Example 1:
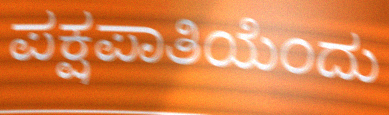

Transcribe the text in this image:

ಪಕ್ಷಪಾತಿಯೆಂದು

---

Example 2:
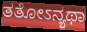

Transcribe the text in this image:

ತತೋಽನ್ಯಥಾ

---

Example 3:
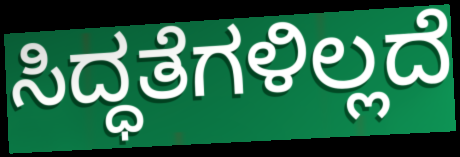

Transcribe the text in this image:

ಸಿದ್ಧತೆಗಳಿಲ್ಲದೆ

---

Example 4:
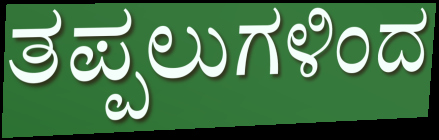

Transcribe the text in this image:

ತಪ್ಪಲುಗಳಿಂದ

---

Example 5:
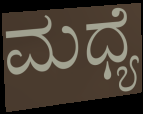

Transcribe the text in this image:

ಮಧ್ಯೆ